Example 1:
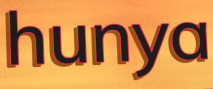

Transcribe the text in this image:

hunya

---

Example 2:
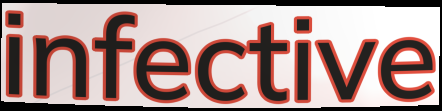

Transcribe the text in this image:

infective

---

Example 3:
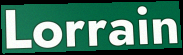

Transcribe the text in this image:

Lorrain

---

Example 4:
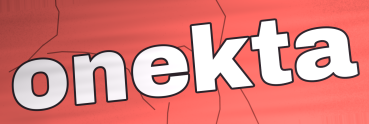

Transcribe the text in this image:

onekta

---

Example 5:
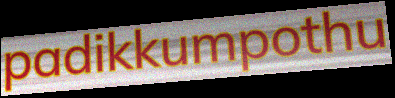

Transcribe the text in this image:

padikkumpothu